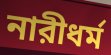
নারীধর্ম